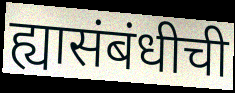
ह्यासंबंधीची